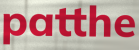
patthe